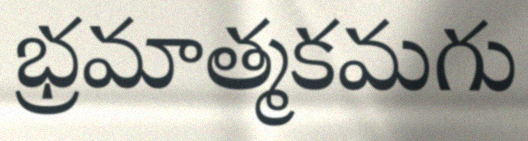
భ్రమాత్మకమగు